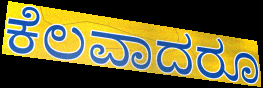
ಕೆಲವಾದರೂ